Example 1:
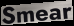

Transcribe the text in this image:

Smear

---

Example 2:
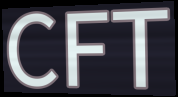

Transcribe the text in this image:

CFT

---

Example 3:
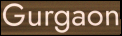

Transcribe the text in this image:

Gurgaon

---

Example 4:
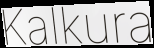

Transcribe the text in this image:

Kalkura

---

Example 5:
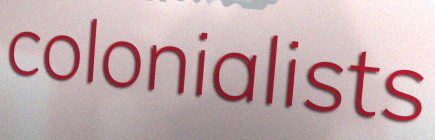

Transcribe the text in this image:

colonialists